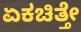
ಏಕಚಿತ್ತೇ